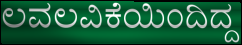
ಲವಲವಿಕೆಯಿಂದಿದ್ದ